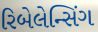
રિબેલેન્સિંગ